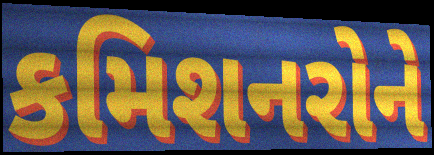
કમિશનરોને